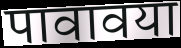
पावावया